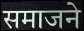
समाजने